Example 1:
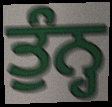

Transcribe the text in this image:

ਤੁੰਨ੍ਹ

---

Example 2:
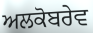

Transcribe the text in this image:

ਅਲਕੋਬਰੇਵ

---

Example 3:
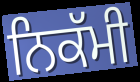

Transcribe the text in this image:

ਨਿਕੱਮੀ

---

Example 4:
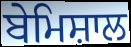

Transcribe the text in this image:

ਬੇਮਿਸ਼ਾਲ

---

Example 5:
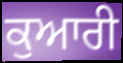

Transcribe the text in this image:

ਕੁਆਰੀ